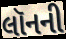
લૉનની